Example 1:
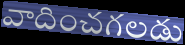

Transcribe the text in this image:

వాదించగలడు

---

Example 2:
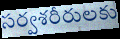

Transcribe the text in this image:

సర్వశరీరులకు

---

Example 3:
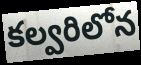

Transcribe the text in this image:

కల్వరిలోన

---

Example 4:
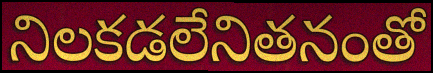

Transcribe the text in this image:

నిలకడలేనితనంతో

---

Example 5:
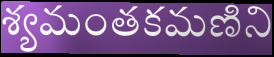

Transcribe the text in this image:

శ్యమంతకమణిని